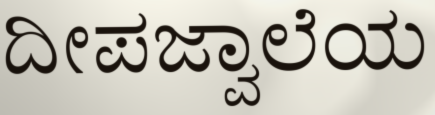
ದೀಪಜ್ವಾಲೆಯ